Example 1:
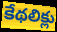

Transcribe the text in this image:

కేథలిక్లు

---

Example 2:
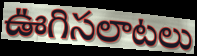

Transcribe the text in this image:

ఊగిసలాటలు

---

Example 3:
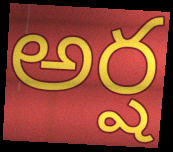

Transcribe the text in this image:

అర్ష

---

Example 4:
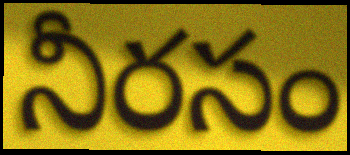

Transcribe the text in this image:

నీరసం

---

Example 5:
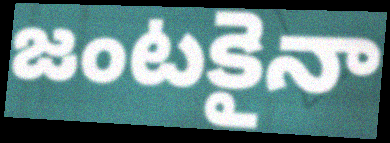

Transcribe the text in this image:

జంటకైనా